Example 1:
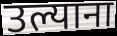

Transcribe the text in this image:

उल्याना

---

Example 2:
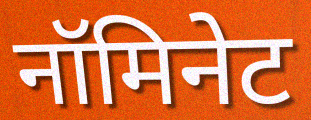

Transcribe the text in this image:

नॉमिनेट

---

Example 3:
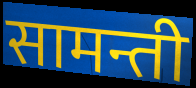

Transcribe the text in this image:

सामन्ती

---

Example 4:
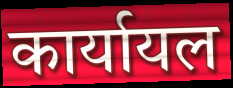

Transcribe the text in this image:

कार्यायल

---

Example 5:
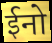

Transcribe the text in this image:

ईनो